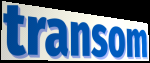
transom